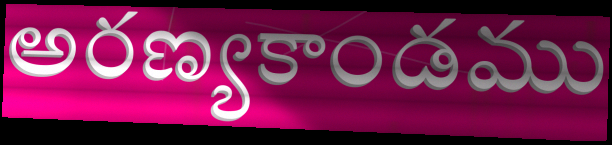
అరణ్యకాండము